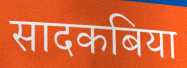
सादकबिया